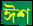
ঈশ